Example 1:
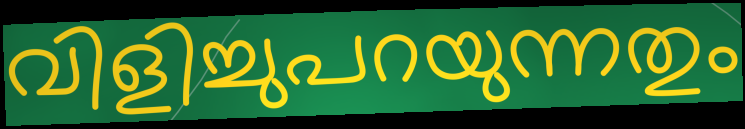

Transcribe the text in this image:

വിളിച്ചുപറയുന്നതും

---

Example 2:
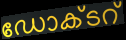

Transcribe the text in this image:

ഡോക്ടറ്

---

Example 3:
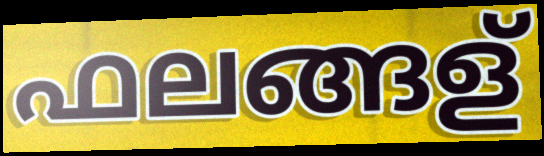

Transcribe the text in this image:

ഫലങ്ങള്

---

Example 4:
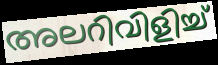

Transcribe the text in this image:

അലറിവിളിച്ച്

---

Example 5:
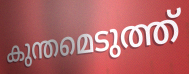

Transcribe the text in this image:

കുന്തമെടുത്ത്